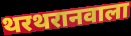
थरथरानवाला